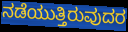
ನಡೆಯುತ್ತಿರುವುದರ